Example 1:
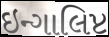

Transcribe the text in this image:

ઇન્ગાલિપ્ટ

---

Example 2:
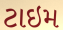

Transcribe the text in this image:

ટાઇમ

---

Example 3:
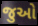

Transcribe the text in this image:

જુઓ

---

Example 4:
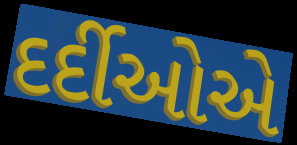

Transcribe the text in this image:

દર્દીઓએ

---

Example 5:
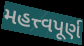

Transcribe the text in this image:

મહત્ત્વપૂર્ણ